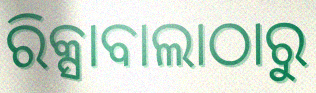
ରିକ୍ସାବାଲାଠାରୁ